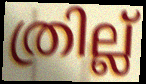
ത്രില്ല്